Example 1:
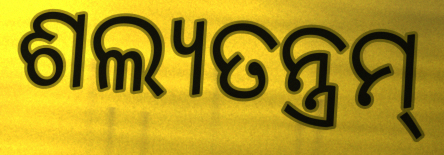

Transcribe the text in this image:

ଶଲ୍ୟତନ୍ତ୍ରମ୍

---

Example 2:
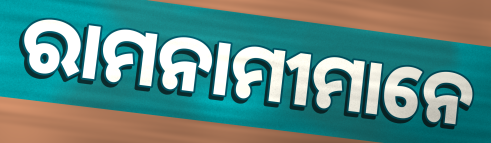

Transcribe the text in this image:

ରାମନାମୀମାନେ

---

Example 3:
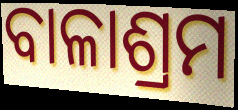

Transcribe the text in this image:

ବାଳାଶ୍ରମ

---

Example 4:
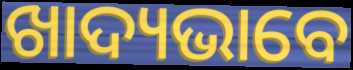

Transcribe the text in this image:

ଖାଦ୍ୟଭାବେ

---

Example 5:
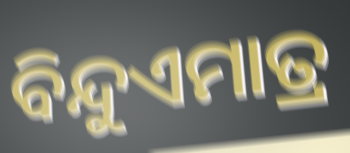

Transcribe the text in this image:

ବିନ୍ଦୁଏମାତ୍ର